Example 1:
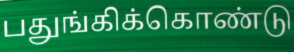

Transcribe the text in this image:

பதுங்கிக்கொண்டு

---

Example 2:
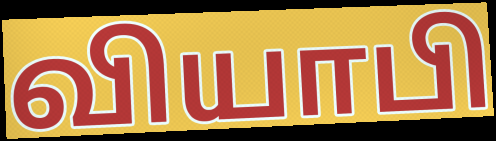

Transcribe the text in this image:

வியாபி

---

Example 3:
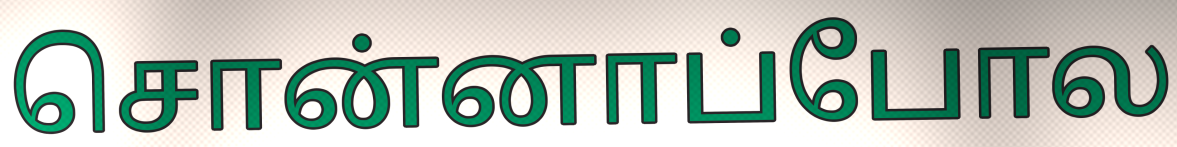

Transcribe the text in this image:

சொன்னாப்போல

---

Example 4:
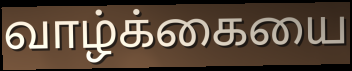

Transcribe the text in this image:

வாழ்க்கையை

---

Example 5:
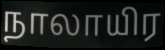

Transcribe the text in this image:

நாலாயிர